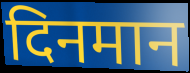
दिनमान